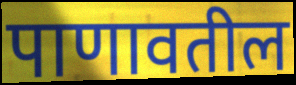
पाणावतील